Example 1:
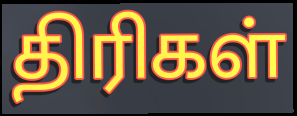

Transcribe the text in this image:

திரிகள்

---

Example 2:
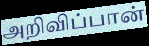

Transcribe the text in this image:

அறிவிப்பான்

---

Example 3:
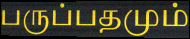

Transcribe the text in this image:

பருப்பதமும்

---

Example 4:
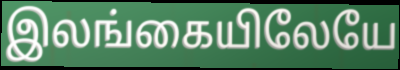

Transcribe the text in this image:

இலங்கையிலேயே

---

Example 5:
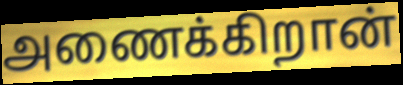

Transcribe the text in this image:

அணைக்கிறான்